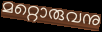
മറ്റൊരുവനു